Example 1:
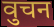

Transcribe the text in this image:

वुचन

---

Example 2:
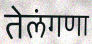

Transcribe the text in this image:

तेलंगणा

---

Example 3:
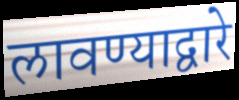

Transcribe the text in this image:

लावण्याद्वारे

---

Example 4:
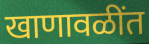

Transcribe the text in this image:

खाणावळींत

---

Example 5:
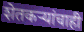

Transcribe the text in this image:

शेतकऱ्यांचाही